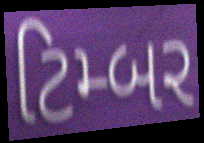
ટિમ્બર